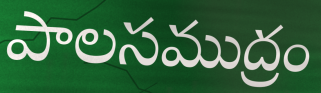
పాలసముద్రం